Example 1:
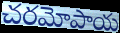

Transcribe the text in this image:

చరమోపాయ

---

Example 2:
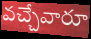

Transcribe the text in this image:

వచ్చేవారూ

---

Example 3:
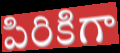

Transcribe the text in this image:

పిరికిగా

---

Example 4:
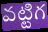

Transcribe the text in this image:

వట్టిగ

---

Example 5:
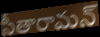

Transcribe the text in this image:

సీతారామన్